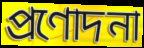
প্রণোদনা